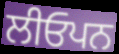
ਲੀਓਪਨ